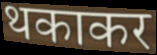
थकाकर